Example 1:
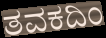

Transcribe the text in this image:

ತವಕದಿಂ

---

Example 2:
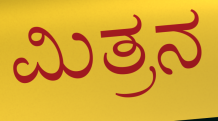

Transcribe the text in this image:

ಮಿತ್ರನ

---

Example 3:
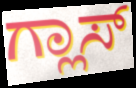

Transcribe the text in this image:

ಗ್ಲಾಸ್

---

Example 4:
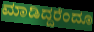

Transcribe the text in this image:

ಮಾಡಿದ್ದರೆಂದೂ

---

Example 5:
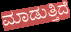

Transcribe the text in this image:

ಮಾಡುತ್ತಿದೆ